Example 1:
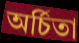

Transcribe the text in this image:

অৰ্চিতা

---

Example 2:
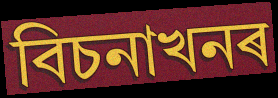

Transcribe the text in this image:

বিচনাখনৰ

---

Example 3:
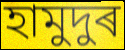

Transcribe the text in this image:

হামুদুৰ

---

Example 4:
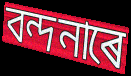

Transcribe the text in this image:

বন্দনাৰে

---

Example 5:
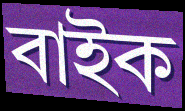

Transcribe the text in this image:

বাইক